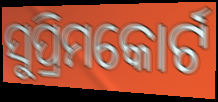
ସୁପ୍ରିମକୋର୍ଟ